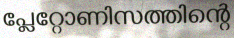
പ്ലേറ്റോണിസത്തിന്റെ